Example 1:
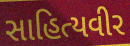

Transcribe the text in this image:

સાહિત્યવીર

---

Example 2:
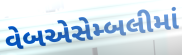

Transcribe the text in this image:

વેબએસેમ્બલીમાં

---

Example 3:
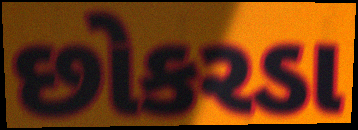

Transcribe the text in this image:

છોકરડા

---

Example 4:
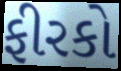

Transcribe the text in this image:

ફીરકો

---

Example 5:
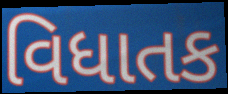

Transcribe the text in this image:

વિધાતક